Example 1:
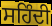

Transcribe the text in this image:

ਸਹਿੰਦੀ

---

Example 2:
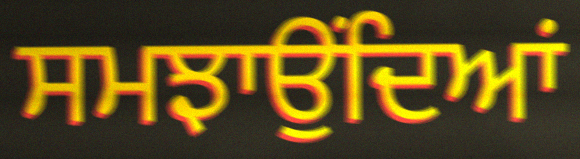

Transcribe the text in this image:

ਸਮਝਾਉਂਦਿਆਂ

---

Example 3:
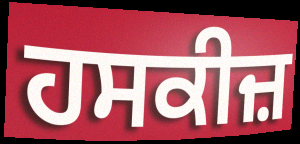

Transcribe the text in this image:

ਹਸਕੀਜ਼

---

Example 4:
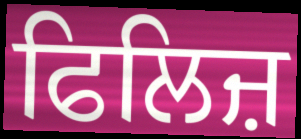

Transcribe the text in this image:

ਫਿਲਿਜ਼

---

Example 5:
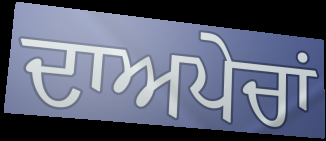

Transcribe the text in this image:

ਦਾਅਪੇਚਾਂ